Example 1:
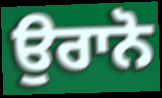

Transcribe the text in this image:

ਉਰਾਨੋ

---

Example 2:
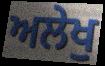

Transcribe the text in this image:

ਅਲੇਖੁ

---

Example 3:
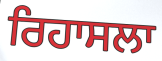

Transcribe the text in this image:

ਰਿਹਾਸਲਾ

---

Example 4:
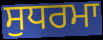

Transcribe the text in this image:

ਸੁਧਰਮਾ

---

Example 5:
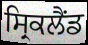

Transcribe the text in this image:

ਸ੍ਰਿਕਲੈਂਡ